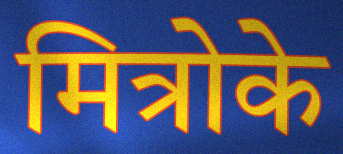
मित्रोके